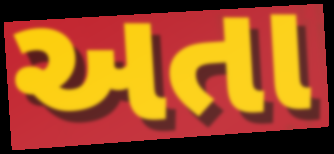
અતા